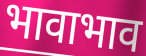
भावाभाव